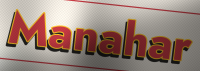
Manahar